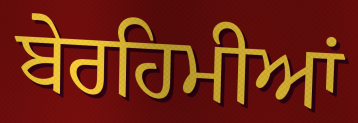
ਬੇਰਹਿਮੀਆਂ